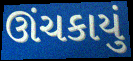
ઊંચકાયું